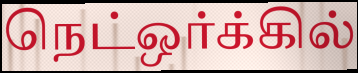
நெட்ஒர்க்கில்